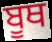
ਬੂਥ